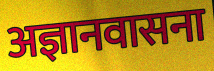
अज्ञानवासना